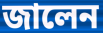
জালেন